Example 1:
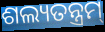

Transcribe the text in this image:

ଶଲ୍ୟତନ୍ତ୍ରମ୍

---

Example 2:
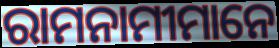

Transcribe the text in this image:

ରାମନାମୀମାନେ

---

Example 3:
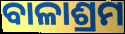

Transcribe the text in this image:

ବାଳାଶ୍ରମ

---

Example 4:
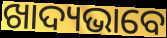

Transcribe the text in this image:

ଖାଦ୍ୟଭାବେ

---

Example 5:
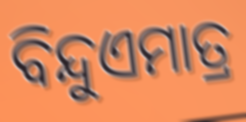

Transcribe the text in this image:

ବିନ୍ଦୁଏମାତ୍ର